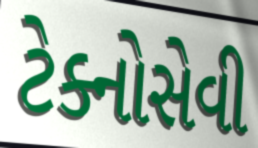
ટેક્નોસેવી